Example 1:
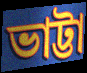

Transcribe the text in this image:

ভাট্টা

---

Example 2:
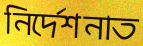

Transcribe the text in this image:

নিৰ্দেশনাত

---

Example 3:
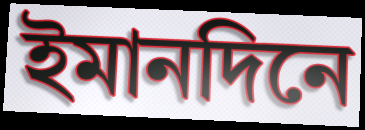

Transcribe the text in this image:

ইমানদিনে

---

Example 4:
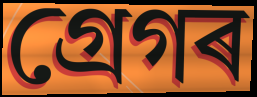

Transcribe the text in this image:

গ্ৰেগৰ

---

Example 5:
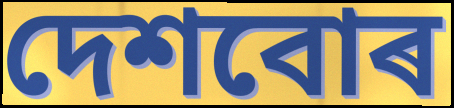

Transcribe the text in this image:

দেশবোৰ